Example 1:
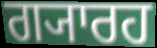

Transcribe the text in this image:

ਗ੍ਯਾਰਹ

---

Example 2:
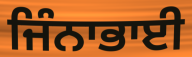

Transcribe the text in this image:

ਜਿੰਨਾਭਾਈ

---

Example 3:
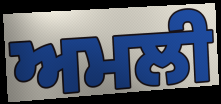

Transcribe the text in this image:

ਅਮਲੀ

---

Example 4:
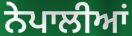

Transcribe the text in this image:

ਨੇਪਾਲੀਆਂ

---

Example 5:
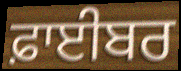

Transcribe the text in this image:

ਫ਼ਾਈਬਰ